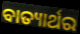
ବାତ୍ୟାର୍ଥର